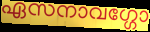
ഏസനാവഗ്ഗോ